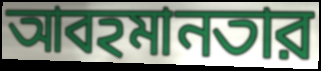
আবহমানতার